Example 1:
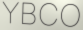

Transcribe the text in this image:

YBCO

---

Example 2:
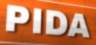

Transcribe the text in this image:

PIDA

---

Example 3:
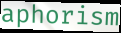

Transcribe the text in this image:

aphorism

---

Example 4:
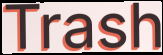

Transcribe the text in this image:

Trash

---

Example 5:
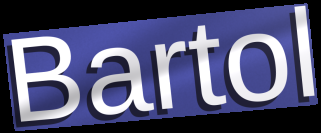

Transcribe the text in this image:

Bartol